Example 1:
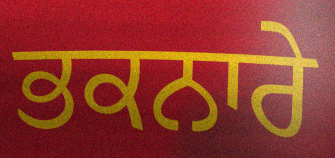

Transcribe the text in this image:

ਭਕਨਾਰੇ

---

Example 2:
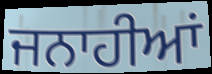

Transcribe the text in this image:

ਜਨਾਹੀਆਂ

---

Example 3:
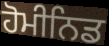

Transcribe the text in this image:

ਹੋਮੀਨਿਡ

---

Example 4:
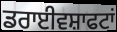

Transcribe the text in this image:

ਡਰਾਈਵਸ਼ਾਫਟਾਂ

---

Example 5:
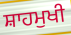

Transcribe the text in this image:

ਸ਼ਾਹਮੁਖੀ